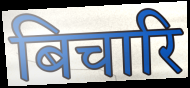
बिचारि